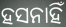
ହସନାହିଁ